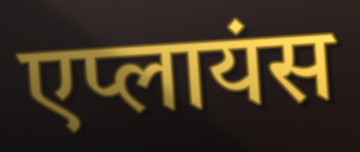
एप्लायंस